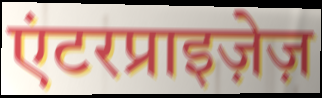
एंटरप्राइज़ेज़